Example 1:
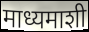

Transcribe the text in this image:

माध्यमाशी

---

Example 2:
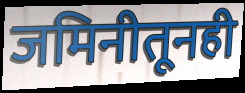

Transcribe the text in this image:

जमिनीतूनही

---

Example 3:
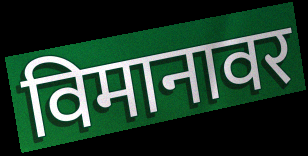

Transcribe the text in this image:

विमानावर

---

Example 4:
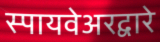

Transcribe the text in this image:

स्पायवेअरद्वारे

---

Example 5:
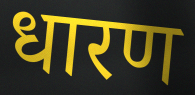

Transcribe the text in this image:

धारण